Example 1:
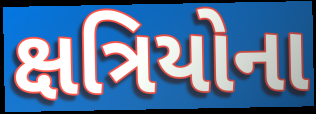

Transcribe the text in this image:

ક્ષત્રિયોના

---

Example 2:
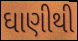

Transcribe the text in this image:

ઘાણીથી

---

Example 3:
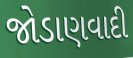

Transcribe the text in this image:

જોડાણવાદી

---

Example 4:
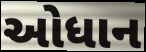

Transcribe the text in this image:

ઓધાન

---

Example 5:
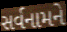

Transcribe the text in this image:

સર્વનામને